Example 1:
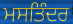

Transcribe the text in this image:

ਮਸਤਿੰਦਰ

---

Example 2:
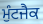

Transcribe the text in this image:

ਮੁੰਟਜੈਕ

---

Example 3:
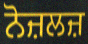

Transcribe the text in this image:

ਨੋਜ਼ਲਜ਼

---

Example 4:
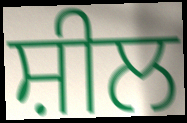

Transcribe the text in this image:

ਸ਼ੀਲ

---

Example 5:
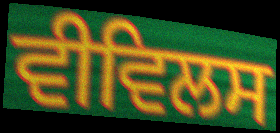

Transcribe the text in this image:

ਵੀਵਿਲਸ